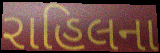
રાહિલના